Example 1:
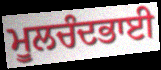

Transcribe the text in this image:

ਮੂਲਚੰਦਭਾਈ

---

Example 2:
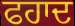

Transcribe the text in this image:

ਫਹਾਦ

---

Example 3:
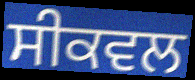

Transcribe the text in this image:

ਸੀਕਵਲ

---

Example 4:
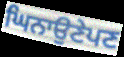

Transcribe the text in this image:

ਘਿਨਾਉਣੇਪਣ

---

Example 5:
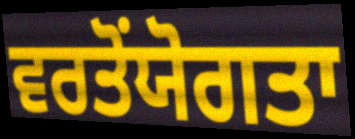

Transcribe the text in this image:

ਵਰਤੋਂਯੋਗਤਾ